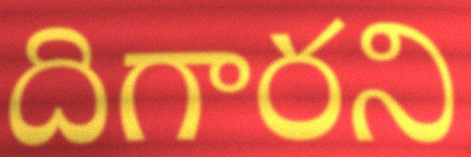
దిగారని